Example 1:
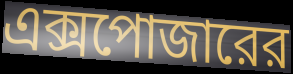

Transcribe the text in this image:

এক্সপোজারের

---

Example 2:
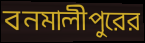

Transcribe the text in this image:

বনমালীপুরের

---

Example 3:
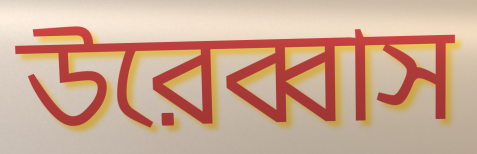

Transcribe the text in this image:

উরেব্বাস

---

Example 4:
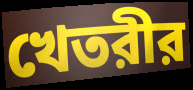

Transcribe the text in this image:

খেতরীর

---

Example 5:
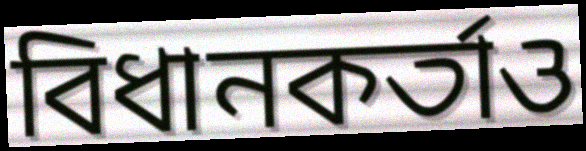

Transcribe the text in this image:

বিধানকর্তাও